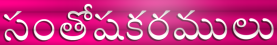
సంతోషకరములు